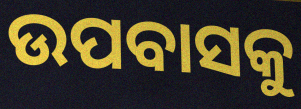
ଉପବାସକୁ